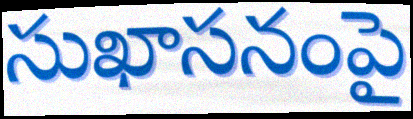
సుఖాసనంపై